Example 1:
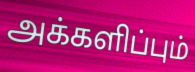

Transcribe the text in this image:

அக்களிப்பும்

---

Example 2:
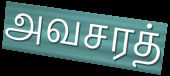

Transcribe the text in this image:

அவசரத்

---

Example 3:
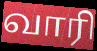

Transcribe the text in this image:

வாரி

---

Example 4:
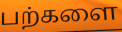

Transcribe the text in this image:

பற்களை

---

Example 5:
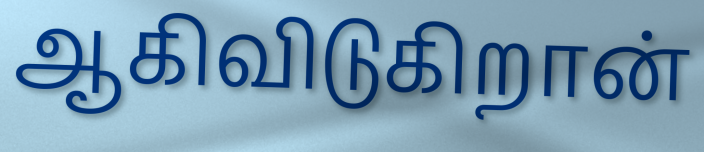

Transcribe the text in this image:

ஆகிவிடுகிறான்